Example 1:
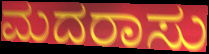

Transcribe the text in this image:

ಮದರಾಸು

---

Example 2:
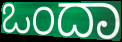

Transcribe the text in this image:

ಒಂದಾ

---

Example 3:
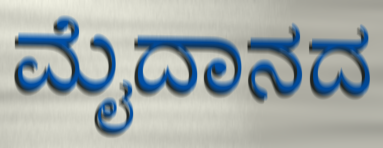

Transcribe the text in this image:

ಮೈದಾನದ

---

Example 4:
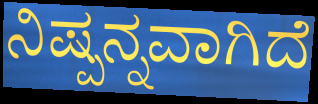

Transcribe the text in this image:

ನಿಷ್ಪನ್ನವಾಗಿದೆ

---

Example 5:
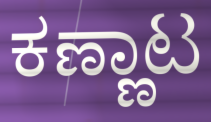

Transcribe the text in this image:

ಕಣ್ಣಾಟ